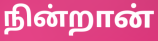
நின்றான்